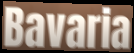
Bavaria